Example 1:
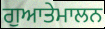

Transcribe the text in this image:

ਗੁਆਤੇਮਾਲਨ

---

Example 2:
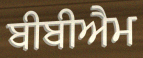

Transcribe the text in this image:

ਬੀਬੀਐਮ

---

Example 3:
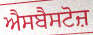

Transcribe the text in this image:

ਐਸਬੈਸਟੋਜ਼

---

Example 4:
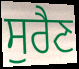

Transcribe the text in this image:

ਸੁਰੈਣ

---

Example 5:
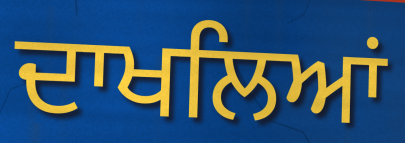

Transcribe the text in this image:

ਦਾਖਲਿਆਂ